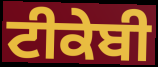
ਟੀਕੇਬੀ